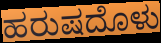
ಹರುಷದೊಳು